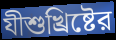
যীশুখ্রিষ্টের